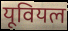
यूवियल